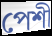
পেশী